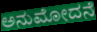
ಅನುಮೋದನೆ